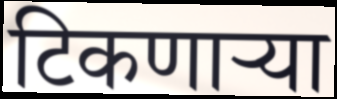
टिकणाऱ्या